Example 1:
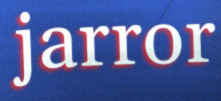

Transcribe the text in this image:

jarror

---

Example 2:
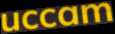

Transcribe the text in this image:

uccam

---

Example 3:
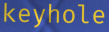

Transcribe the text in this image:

keyhole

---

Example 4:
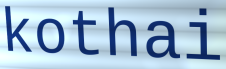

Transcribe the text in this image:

kothai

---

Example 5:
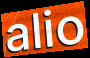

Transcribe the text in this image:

alio